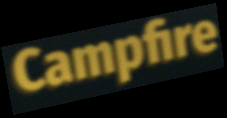
Campfire